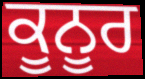
ਕੂਨੂਰ